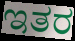
ಇತರ